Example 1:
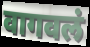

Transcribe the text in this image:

वागवलं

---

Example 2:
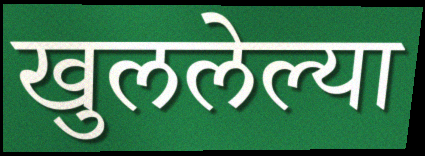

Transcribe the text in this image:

खुललेल्या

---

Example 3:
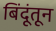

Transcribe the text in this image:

बिंदूंतून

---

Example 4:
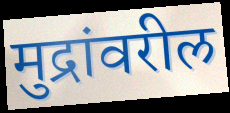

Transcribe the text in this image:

मुद्रांवरील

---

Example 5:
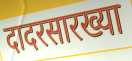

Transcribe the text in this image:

दादरसारख्या